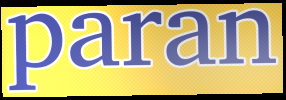
paran